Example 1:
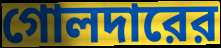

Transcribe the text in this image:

গোলদারের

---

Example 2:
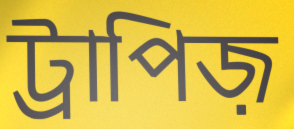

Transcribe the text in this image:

ট্রাপিজ়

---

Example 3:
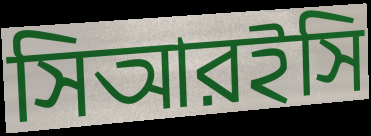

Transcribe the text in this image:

সিআরইসি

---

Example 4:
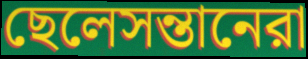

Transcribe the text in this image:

ছেলেসন্তানেরা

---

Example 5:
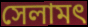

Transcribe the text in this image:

সেলামৎ